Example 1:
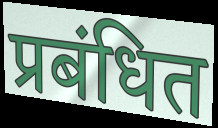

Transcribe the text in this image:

प्रबंधित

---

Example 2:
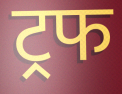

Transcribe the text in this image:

ट्रफ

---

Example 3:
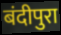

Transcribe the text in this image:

बंदीपुरा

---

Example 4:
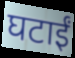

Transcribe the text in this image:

घटाईं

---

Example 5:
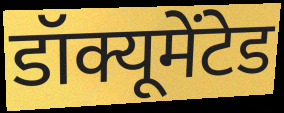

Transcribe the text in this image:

डॉक्यूमेंटेड